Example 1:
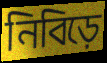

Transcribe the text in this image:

নিবিড়ে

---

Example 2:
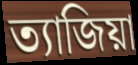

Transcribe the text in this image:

ত্যাজিয়া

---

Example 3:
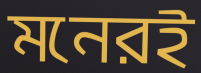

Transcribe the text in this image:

মনেরই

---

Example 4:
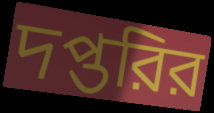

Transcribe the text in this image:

দপ্তরির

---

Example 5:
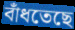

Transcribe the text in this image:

বাঁধতেছে